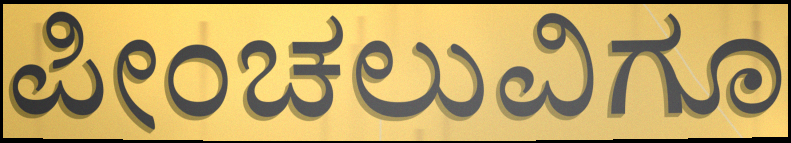
ಪೀಂಚಲುವಿಗೂ